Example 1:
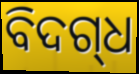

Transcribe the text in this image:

ବିଦଗ୍‍ଧ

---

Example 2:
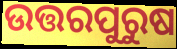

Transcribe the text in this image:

ଉତ୍ତରପୁରୁଷ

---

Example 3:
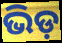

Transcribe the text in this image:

ଭିଡ଼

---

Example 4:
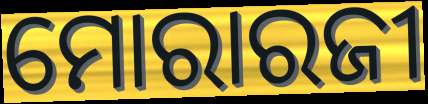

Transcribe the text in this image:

ମୋରାରଜୀ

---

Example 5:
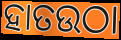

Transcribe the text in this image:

ହାତଉଠା